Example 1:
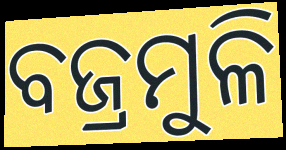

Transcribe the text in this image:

ବଜ୍ରମୁଳି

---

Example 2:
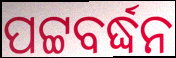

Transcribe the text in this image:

ପଟ୍ଟବର୍ଦ୍ଧନ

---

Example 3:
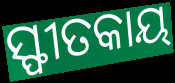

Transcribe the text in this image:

ସ୍ଫୀତକାୟ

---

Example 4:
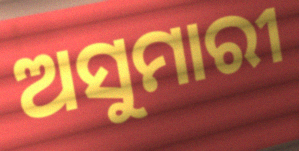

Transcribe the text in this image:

ଅସୁମାରୀ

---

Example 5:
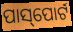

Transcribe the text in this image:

ପାସ୍‌ପୋର୍ଟ